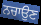
ਨਚਾਉਣ